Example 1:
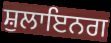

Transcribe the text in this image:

ਸ਼ੁਲਾਇਨਗ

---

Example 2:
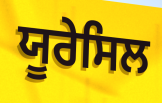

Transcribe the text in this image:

ਯੂਰੇਸਿਲ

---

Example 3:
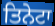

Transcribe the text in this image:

ਤਿਨੇਟਾ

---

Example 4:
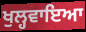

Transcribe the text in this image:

ਖੁਲ੍ਹਵਾਇਆ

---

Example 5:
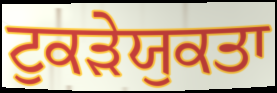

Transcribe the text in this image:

ਟੁਕੜੇਯੁਕਤਾ